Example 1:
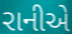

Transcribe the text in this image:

રાનીએ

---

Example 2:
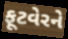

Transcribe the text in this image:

ફૂટવેરને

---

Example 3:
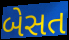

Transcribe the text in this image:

બેસત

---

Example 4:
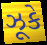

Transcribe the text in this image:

ઝૂકે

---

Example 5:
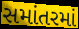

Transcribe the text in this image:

સમાંતરમાં